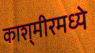
काश्मीरमध्ये